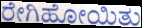
ರೇಗಿಹೋಯಿತು